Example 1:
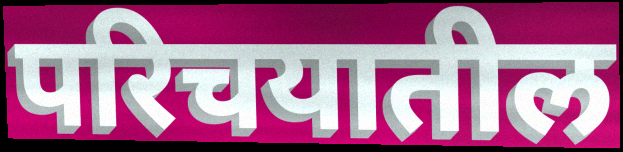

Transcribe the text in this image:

परिचयातील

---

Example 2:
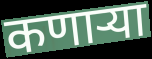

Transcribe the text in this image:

कणाऱ्या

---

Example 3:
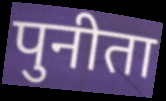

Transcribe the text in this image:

पुनीता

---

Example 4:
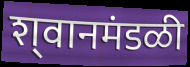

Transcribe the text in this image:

श्वानमंडळी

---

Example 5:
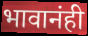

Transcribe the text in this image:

भावानंही